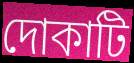
দোকাটি